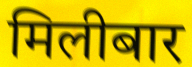
मिलीबार